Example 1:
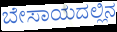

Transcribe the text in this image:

ಬೇಸಾಯದಲ್ಲಿನ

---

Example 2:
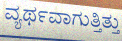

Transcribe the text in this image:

ವ್ಯರ್ಥವಾಗುತ್ತಿತ್ತು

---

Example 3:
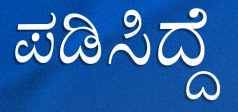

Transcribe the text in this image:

ಪಡಿಸಿದ್ದೆ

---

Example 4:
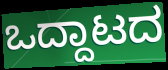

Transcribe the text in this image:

ಒದ್ದಾಟದ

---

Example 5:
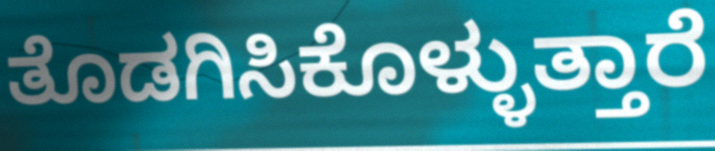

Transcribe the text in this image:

ತೊಡಗಿಸಿಕೊಳ್ಳುತ್ತಾರೆ